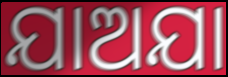
ଯାଅଯା